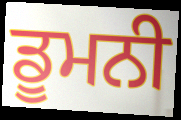
ਡੂਮਨੀ